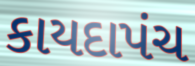
કાયદાપંચ